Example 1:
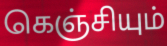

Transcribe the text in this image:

கெஞ்சியும்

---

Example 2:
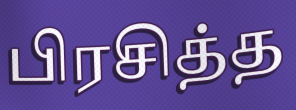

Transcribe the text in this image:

பிரசித்த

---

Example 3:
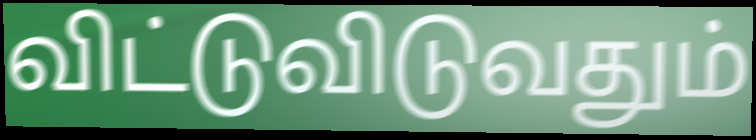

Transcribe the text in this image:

விட்டுவிடுவதும்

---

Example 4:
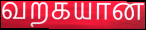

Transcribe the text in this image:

வறகயான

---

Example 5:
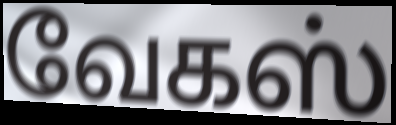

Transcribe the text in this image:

வேகஸ்